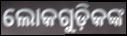
ଲୋକଗୁଡ଼ିକଙ୍କ